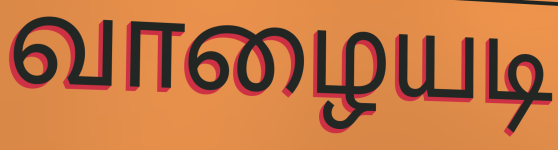
வாழையடி